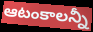
ఆటంకాలన్నీ